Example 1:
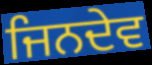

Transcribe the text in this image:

ਜਿਨਦੇਵ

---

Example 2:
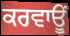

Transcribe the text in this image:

ਕਰਵਾਊਂ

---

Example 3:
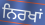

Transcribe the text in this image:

ਨਿਰਖਾਂ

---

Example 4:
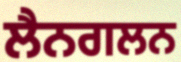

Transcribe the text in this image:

ਲੈਨਗਲਨ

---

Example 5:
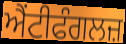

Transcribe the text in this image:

ਐਂਟੀਫੰਗਲਜ਼